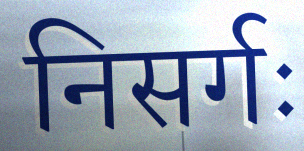
निसर्गः